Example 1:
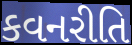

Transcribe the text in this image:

કવનરીતિ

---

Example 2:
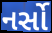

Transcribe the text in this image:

નર્સો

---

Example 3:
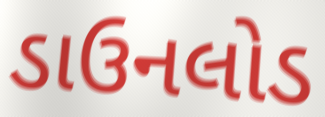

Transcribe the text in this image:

ડાઉનલોડ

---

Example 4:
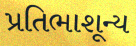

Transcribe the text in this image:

પ્રતિભાશૂન્ય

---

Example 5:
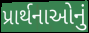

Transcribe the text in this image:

પ્રાર્થનાઓનું